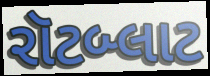
રૉટબ્લાટ